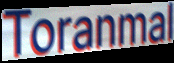
Toranmal